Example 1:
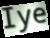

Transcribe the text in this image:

Iye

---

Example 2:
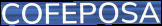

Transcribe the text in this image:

COFEPOSA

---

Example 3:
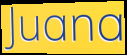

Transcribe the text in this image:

Juana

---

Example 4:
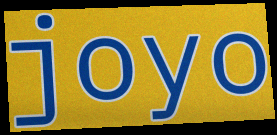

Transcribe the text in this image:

joyo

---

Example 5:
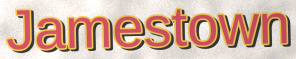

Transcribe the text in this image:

Jamestown